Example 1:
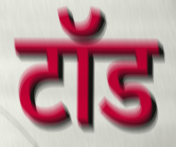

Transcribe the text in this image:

टॉड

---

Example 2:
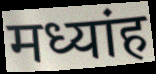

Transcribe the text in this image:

मध्यांह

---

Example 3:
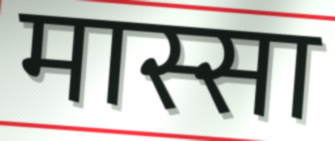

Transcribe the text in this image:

मास्सा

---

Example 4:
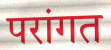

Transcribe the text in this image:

परांगत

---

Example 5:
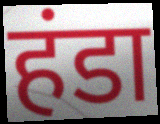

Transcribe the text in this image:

हंडा